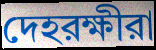
দেহরক্ষীরা